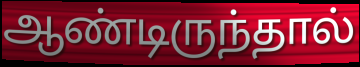
ஆண்டிருந்தால்